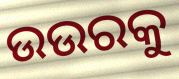
ଉଉରକୁ